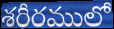
శరీరములో